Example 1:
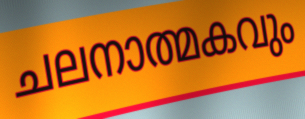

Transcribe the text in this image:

ചലനാത്മകവും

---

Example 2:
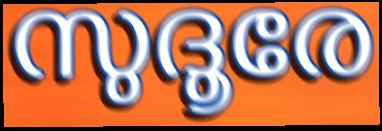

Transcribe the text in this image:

സുദൂരേ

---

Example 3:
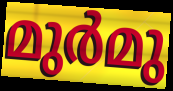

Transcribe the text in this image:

മുർമു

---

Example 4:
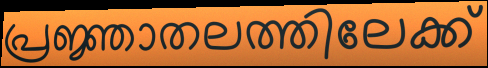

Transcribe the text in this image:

പ്രജ്ഞാതലത്തിലേക്ക്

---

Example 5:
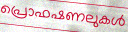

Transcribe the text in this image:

പ്രൊഫഷണലുകൾ